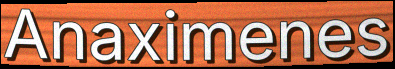
Anaximenes